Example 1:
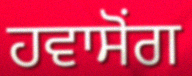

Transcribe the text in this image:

ਹਵਾਸੋਂਗ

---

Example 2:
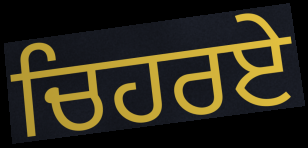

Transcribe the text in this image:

ਚਿਹਰਏ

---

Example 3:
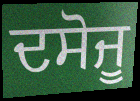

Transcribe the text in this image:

ਦਸੋਜੂ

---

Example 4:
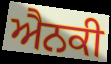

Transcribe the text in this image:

ਐਨਕੀ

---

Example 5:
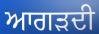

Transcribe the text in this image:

ਆਗੜਦੀ